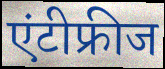
एंटीफ्रीज